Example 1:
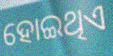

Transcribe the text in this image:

ହୋଇଥିଏ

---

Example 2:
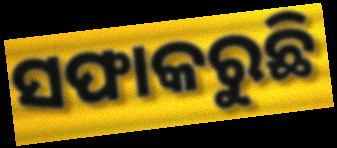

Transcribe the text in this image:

ସଫାକରୁଛି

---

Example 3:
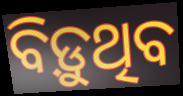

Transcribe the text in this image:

ବିଡ଼ୁଥିବ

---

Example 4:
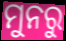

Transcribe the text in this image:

ମୁନରୁ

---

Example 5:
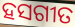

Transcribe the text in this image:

ହସଗୀତ